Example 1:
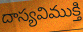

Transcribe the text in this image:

దాస్యవిముక్తి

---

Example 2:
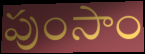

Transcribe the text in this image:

పుంసాం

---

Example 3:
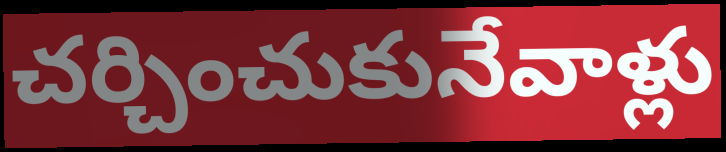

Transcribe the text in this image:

చర్చించుకునేవాళ్లు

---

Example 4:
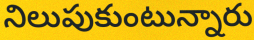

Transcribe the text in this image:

నిలుపుకుంటున్నారు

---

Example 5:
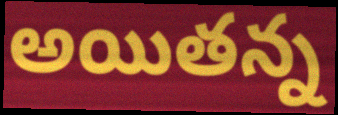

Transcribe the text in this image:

అయితన్న